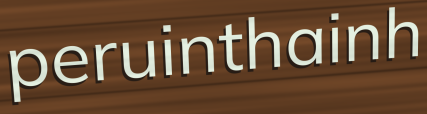
peruinthainh